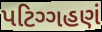
પટિગ્ગહણં